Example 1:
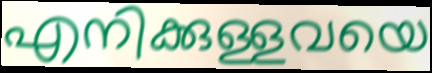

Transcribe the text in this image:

എനിക്കുള്ളവയെ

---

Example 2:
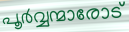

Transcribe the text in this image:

പൂർവ്വന്മാരോട്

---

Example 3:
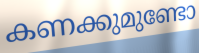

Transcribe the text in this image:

കണക്കുമുണ്ടോ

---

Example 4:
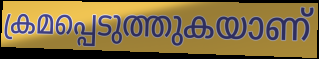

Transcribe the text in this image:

ക്രമപ്പെടുത്തുകയാണ്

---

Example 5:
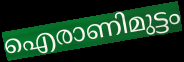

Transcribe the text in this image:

ഐരാണിമുട്ടം